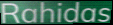
Rahidas